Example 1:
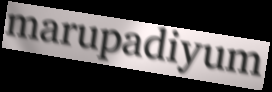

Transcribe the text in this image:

marupadiyum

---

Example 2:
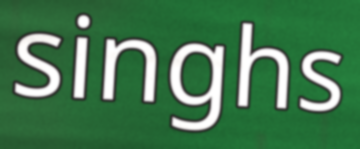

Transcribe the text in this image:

singhs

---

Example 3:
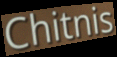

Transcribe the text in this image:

Chitnis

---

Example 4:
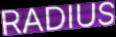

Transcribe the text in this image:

RADIUS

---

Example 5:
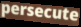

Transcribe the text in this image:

persecute